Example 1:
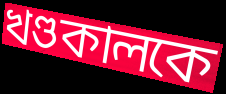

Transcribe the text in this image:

খণ্ডকালকে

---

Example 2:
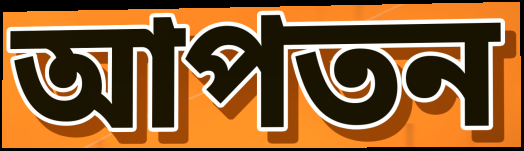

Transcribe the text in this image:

আপতন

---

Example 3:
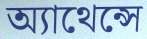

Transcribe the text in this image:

অ্যাথেন্সে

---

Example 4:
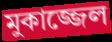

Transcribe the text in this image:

মুকাজ্জেল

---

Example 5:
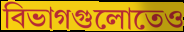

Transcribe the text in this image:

বিভাগগুলোতেও